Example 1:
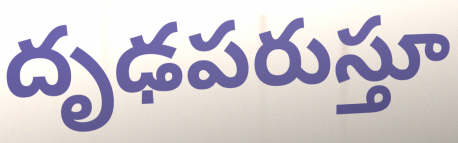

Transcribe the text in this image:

దృఢపరుస్తూ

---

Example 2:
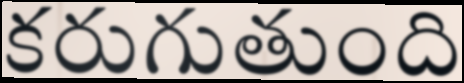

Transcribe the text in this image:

కరుగుతుంది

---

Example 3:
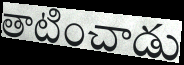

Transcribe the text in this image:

తాటించాడు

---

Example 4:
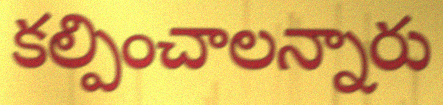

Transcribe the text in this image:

కల్పించాలన్నారు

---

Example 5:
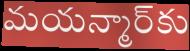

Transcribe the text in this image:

మయన్మార్‌కు